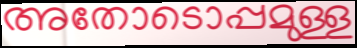
അതോടൊപ്പമുള്ള